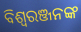
ବିଶ୍ବରଞ୍ଜନଙ୍କ